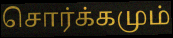
சொர்க்கமும்